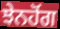
ਝੇਨਹੋਂਗ